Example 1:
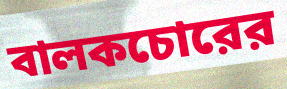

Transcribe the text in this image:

বালকচোরের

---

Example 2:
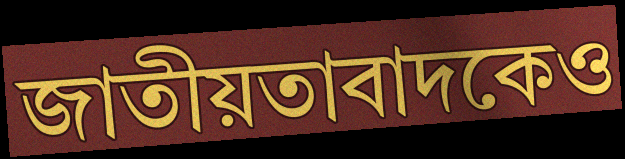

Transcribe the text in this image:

জাতীয়তাবাদকেও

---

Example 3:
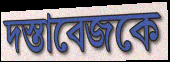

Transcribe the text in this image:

দস্তাবেজকে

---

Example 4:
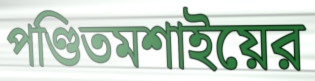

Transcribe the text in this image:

পণ্ডিতমশাইয়ের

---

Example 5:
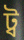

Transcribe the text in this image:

ট্ব